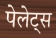
पेलेट्स